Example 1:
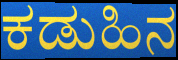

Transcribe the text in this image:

ಕಡುಹಿನ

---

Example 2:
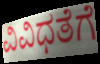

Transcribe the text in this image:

ವಿವಿಧತೆಗೆ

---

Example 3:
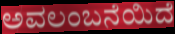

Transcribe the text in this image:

ಅವಲಂಬನೆಯಿದೆ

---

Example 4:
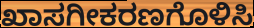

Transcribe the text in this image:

ಖಾಸಗೀಕರಣಗೊಳಿಸಿ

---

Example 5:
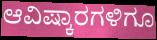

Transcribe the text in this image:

ಆವಿಷ್ಕಾರಗಳಿಗೂ